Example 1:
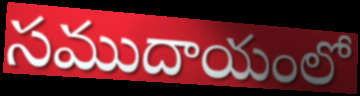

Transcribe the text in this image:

సముదాయంలో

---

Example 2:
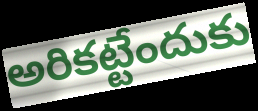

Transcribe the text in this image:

అరికట్టేందుకు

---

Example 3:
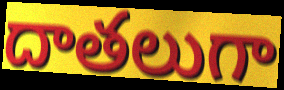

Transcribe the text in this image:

దాతలుగా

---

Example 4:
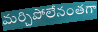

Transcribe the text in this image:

మర్చిపోలేనంతగా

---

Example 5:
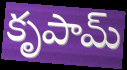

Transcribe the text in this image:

కృపామ్